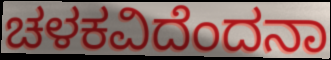
ಚಳಕವಿದೆಂದನಾ